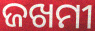
ଜଖମୀ